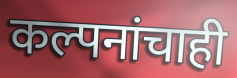
कल्पनांचाही